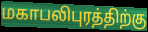
மகாபலிபுரத்திற்கு